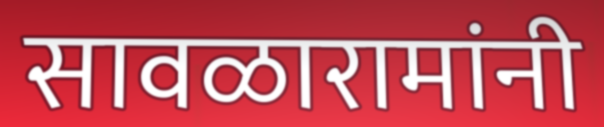
सावळारामांनी